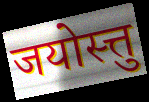
जयोस्त्तु